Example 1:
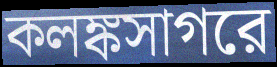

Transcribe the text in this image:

কলঙ্কসাগরে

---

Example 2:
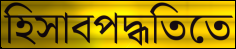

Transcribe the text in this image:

হিসাবপদ্ধতিতে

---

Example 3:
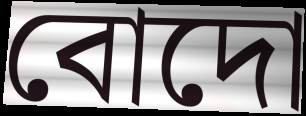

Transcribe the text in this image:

বোদো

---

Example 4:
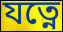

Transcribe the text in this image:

যত্নে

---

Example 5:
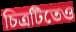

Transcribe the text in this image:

চিত্রটিতেও